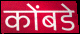
कोंबडे